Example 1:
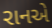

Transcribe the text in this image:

રાનએ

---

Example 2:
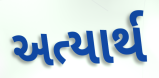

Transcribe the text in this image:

અત્યાર્થ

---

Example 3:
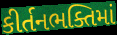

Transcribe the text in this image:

કીર્તનભક્તિમાં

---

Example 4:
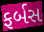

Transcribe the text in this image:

ફર્બસ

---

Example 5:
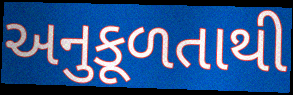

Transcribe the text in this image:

અનુકૂળતાથી